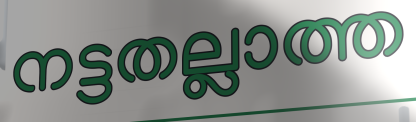
നട്ടതല്ലാത്ത